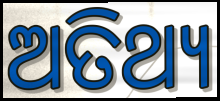
ଅତିଥ୍ୟ